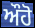
ਔਹੋ